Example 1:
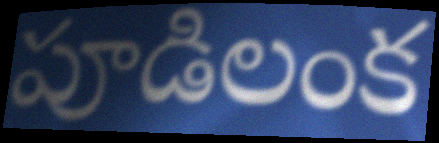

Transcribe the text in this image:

పూడిలంక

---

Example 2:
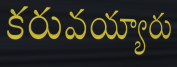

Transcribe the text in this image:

కరువయ్యారు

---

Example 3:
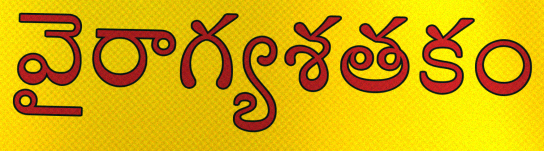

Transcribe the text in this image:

వైరాగ్యశతకం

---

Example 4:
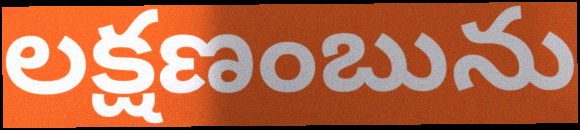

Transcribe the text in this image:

లక్షణంబును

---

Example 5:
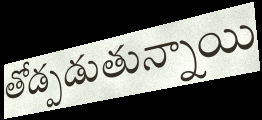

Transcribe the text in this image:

తోడ్పడుతున్నాయి